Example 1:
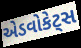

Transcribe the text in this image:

એડવોકેટ્સ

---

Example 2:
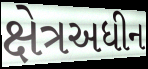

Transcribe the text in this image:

ક્ષેત્રઅધીન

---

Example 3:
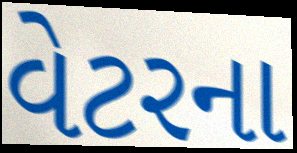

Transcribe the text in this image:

વેટરના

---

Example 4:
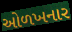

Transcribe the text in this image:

ઓળખનાર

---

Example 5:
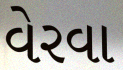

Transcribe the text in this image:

વેરવા